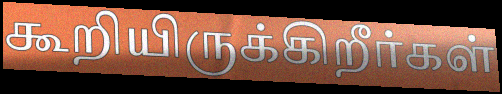
கூறியிருக்கிறீர்கள்